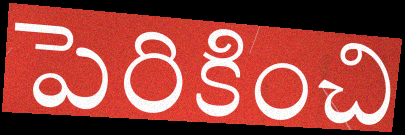
పెరికించి